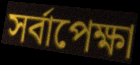
সর্বাপেক্ষা